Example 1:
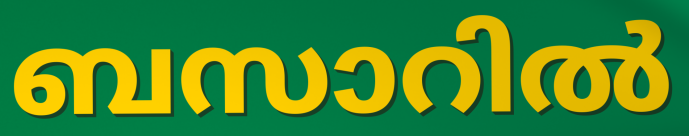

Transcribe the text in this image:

ബസാറിൽ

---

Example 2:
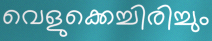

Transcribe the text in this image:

വെളുക്കെച്ചിരിച്ചും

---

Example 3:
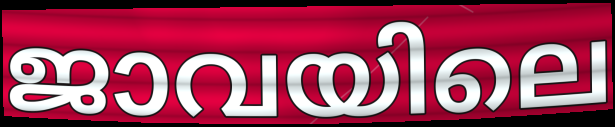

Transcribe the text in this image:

ജാവയിലെ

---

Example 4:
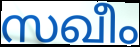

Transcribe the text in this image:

സഖീം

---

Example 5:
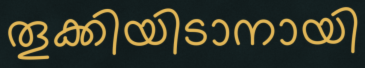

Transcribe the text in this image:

തൂക്കിയിടാനായി